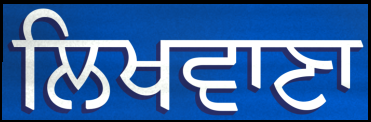
ਲਿਖਵਾਣਾ